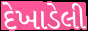
દેખાડેલી